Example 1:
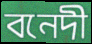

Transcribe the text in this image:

বনেদী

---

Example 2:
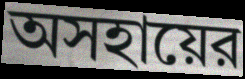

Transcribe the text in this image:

অসহায়ের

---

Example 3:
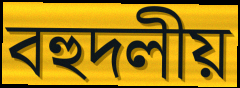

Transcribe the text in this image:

বহুদলীয়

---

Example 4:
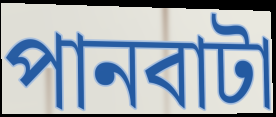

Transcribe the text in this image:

পানবাটা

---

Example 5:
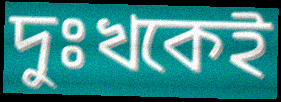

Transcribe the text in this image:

দুঃখকেই